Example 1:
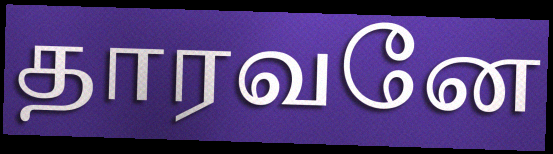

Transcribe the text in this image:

தாரவனே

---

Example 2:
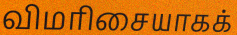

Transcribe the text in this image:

விமரிசையாகக்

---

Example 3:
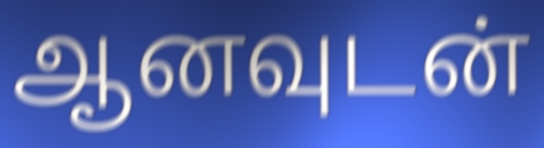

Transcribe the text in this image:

ஆனவுடன்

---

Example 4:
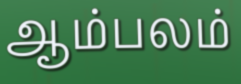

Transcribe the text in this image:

ஆம்பலம்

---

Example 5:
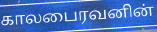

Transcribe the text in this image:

காலபைரவனின்